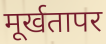
मूर्खतापर